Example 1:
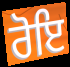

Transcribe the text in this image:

ਰੋਇ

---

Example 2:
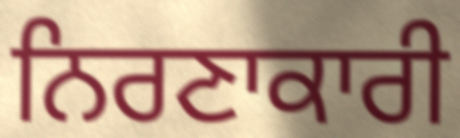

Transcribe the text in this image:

ਨਿਰਣਾਕਾਰੀ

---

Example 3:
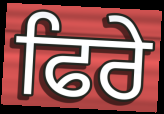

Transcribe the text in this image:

ਫਿਰੇ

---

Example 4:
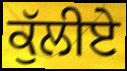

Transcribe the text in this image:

ਕੁੱਲੀਏ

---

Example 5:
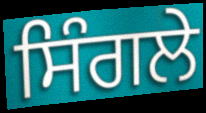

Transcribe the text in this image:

ਸਿੰਗਲੇ